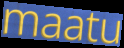
maatu